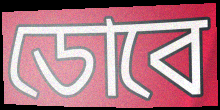
ডোবে